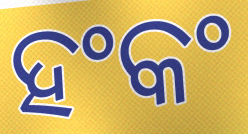
ହଂକଂ